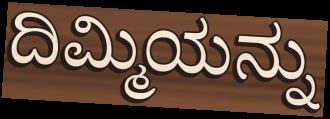
ದಿಮ್ಮಿಯನ್ನು